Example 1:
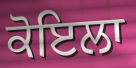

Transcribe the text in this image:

ਕੋਇਲਾ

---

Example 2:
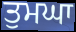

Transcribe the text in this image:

ਤੁਮਘਾ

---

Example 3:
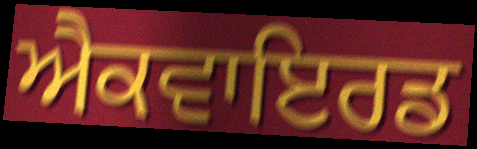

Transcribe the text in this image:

ਐਕਵਾਇਰਡ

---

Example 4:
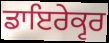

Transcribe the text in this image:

ਡਾਇਰੇਕ੍ਟਰ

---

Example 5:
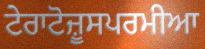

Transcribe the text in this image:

ਟੇਰਾਟੋਜ਼ੂਸਪਰਮੀਆ